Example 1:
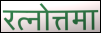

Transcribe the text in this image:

रत्नोत्तमा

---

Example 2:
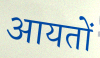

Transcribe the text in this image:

आयतों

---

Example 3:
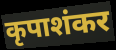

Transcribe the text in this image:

कृपाशंकर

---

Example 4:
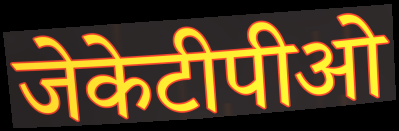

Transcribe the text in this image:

जेकेटीपीओ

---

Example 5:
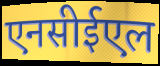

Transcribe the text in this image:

एनसीईएल